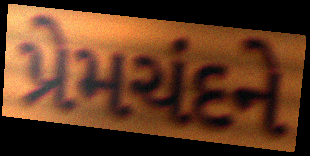
પ્રેમચંદને